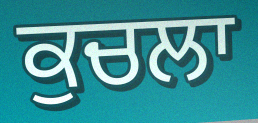
ਕੁਚਲਾ